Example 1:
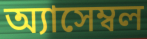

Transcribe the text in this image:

অ্যাসেম্বল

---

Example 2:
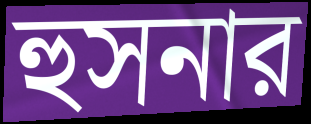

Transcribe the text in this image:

হুসনার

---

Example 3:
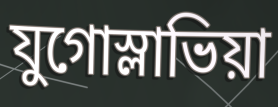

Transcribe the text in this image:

যুগোস্লাভিয়া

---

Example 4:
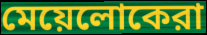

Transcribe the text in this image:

মেয়েলোকেরা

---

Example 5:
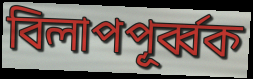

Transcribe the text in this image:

বিলাপপূর্ব্বক